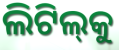
ଲିଟିଲ୍‌କୁ